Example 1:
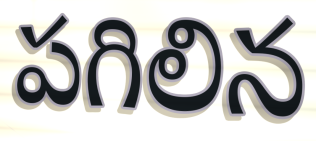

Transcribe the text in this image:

పగిలిన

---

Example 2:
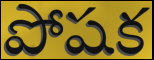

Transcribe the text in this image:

పోషక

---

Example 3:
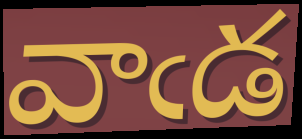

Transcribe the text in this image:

వాఁడ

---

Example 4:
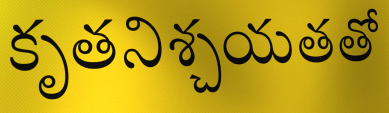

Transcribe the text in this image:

కృతనిశ్చయతతో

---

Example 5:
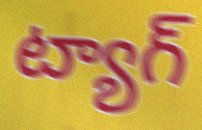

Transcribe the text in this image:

ట్యాగ్